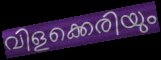
വിളക്കെരിയും